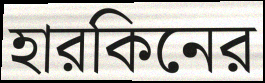
হারকিনের